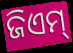
ଜିଏମ୍